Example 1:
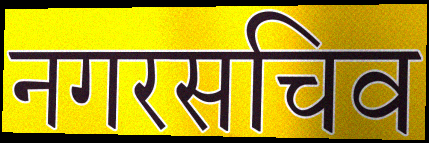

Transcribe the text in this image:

नगरसचिव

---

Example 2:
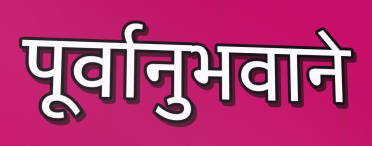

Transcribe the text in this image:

पूर्वानुभवाने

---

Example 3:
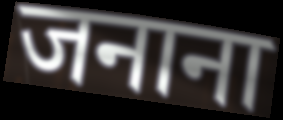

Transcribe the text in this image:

जनाना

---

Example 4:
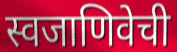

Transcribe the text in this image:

स्वजाणिवेची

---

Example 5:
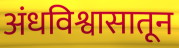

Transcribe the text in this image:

अंधविश्वासातून